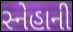
સ્નેહાની